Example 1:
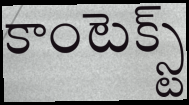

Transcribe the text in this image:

కాంటెక్స్ట్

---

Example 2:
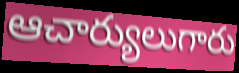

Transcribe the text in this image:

ఆచార్యులుగారు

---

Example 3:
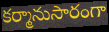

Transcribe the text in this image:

కర్మానుసారంగా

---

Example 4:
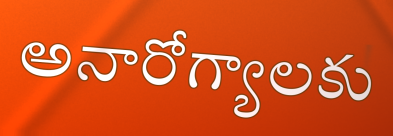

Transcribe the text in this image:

అనారోగ్యాలకు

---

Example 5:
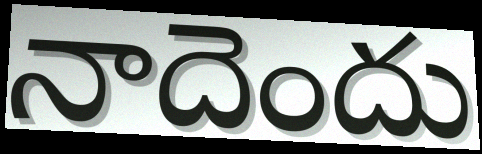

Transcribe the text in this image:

నాదెందు